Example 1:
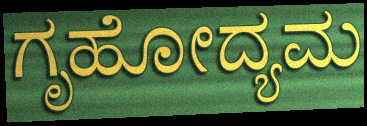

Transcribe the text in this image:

ಗೃಹೋದ್ಯಮ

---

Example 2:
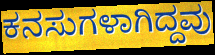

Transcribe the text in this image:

ಕನಸುಗಳಾಗಿದ್ದವು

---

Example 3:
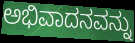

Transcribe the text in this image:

ಅಭಿವಾದನವನ್ನು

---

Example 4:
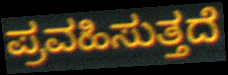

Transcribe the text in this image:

ಪ್ರವಹಿಸುತ್ತದೆ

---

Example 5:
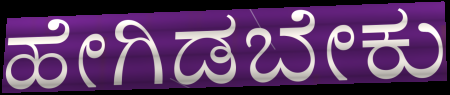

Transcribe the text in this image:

ಹೇಗಿಡಬೇಕು